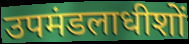
उपमंडलाधीशों